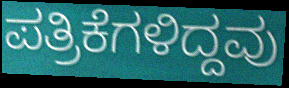
ಪತ್ರಿಕೆಗಳಿದ್ದವು